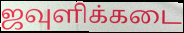
ஜவுளிக்கடை